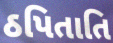
ઠપિતાતિ